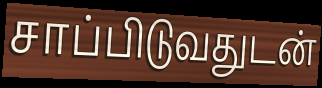
சாப்பிடுவதுடன்